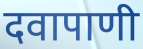
दवापाणी